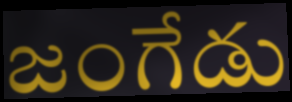
జంగేడు